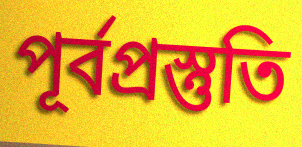
পূর্বপ্রস্তুতি